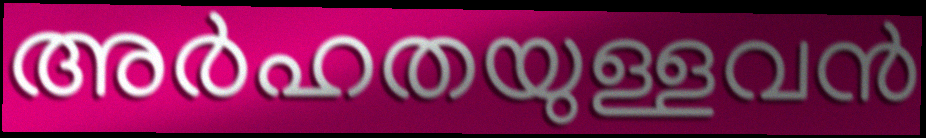
അർഹതയുള്ളവൻ